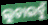
ଲୁଚାଇବୁଁ